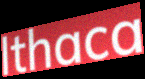
Ithaca